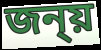
জন্য়